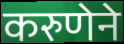
करुणेने